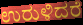
ಉರುಳಿದರೆ